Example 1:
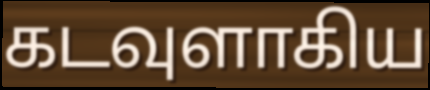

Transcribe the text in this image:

கடவுளாகிய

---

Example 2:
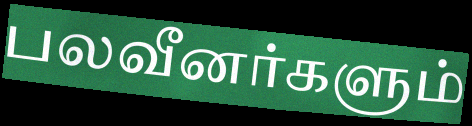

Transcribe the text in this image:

பலவீனர்களும்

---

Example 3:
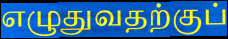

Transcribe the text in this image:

எழுதுவதற்குப்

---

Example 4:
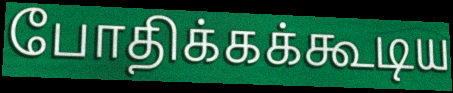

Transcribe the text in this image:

போதிக்கக்கூடிய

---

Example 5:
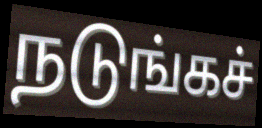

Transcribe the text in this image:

நடுங்கச்